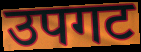
उपगट